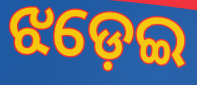
ଝଡ଼େଇ